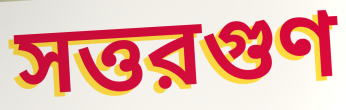
সত্তরগুণ